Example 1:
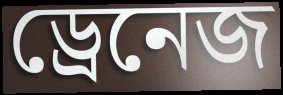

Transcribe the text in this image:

ড্রেনেজ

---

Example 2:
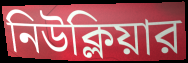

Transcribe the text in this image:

নিউক্লিয়ার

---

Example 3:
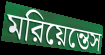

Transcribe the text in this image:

মরিয়েন্তেস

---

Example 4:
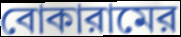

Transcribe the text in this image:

বোকারামের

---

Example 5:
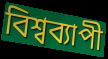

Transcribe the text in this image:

বিশ্বব্যাপী